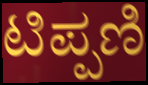
ಟಿಪ್ಪಣಿ